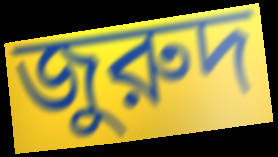
জুরুদ